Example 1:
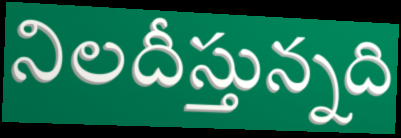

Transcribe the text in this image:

నిలదీస్తున్నది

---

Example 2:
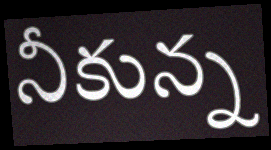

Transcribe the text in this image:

నీకున్న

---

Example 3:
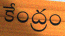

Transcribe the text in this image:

కేంద్రం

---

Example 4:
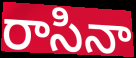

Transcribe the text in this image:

రాసినా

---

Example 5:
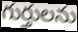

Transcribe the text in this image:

గుర్తులను